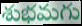
శుభమగు